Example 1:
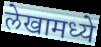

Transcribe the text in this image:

लेखामध्ये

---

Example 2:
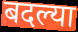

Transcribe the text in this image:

बदल्या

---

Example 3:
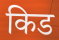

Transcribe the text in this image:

किड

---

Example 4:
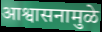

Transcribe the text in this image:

आश्वासनामुळे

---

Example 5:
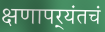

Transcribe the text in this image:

क्षणापर्यंतचं